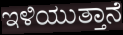
ಇಳಿಯುತ್ತಾನೆ